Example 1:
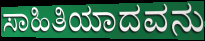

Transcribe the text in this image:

ಸಾಹಿತಿಯಾದವನು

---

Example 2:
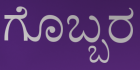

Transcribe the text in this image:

ಗೊಬ್ಬರ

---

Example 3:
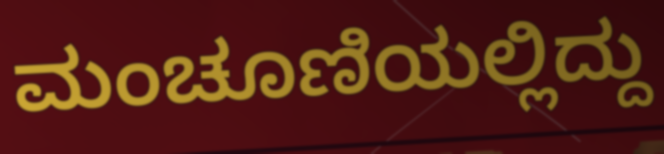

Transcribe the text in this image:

ಮಂಚೂಣಿಯಲ್ಲಿದ್ದು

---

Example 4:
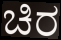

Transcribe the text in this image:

ಚಿರ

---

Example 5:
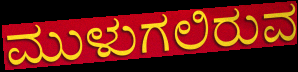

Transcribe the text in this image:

ಮುಳುಗಲಿರುವ